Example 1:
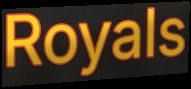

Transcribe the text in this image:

Royals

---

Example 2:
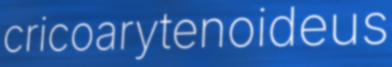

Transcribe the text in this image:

cricoarytenoideus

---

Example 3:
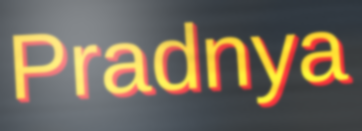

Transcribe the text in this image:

Pradnya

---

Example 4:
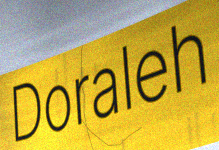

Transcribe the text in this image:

Doraleh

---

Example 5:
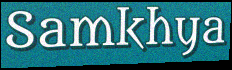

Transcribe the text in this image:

Samkhya